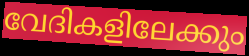
വേദികളിലേക്കും